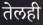
तेलही